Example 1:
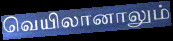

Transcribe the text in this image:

வெயிலானாலும்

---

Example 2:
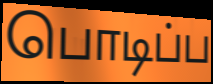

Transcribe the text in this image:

பொடிப்ப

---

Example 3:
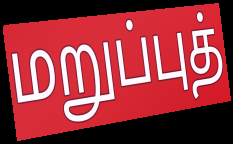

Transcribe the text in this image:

மறுப்புத்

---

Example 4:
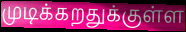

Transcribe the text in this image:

முடிக்கறதுக்குள்ள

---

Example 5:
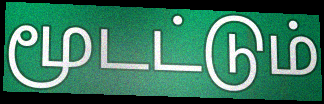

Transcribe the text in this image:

மூடட்டும்